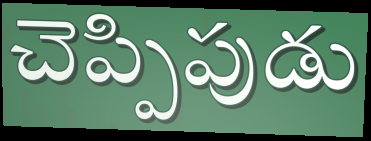
చెప్పిపుడు